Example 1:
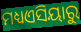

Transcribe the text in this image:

ମଧ୍ୟଏସିୟାରୁ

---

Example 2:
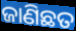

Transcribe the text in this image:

ଜାଣିଛତ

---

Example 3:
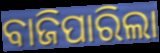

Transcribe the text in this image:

ବାଜିପାରିଲା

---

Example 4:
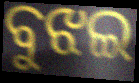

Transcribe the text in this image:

ବୁଝଇ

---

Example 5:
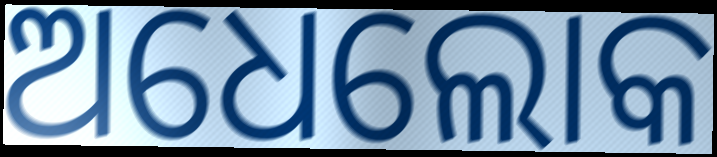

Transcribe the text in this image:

ଅଧେଲୋକ